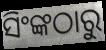
ସିଂଙ୍କଠାରୁ